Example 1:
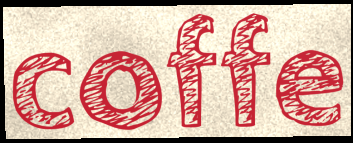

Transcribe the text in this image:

coffe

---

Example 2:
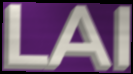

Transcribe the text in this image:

LAI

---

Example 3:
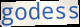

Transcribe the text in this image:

godess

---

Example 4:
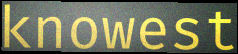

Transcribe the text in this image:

knowest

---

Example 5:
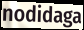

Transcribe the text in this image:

nodidaga